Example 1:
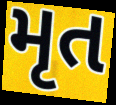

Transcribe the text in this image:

મૃત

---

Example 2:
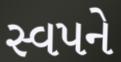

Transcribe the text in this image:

સ્વપને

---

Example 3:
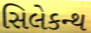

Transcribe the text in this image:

સિલેકન્થ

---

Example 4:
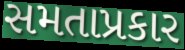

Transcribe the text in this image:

સમતાપ્રકાર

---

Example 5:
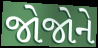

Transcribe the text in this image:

જોજોને